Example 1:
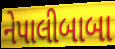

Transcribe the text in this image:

નેપાલીબાબા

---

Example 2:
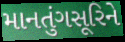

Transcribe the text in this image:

માનતુંગસૂરિને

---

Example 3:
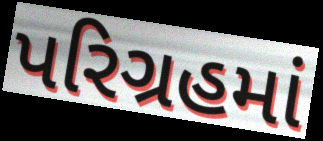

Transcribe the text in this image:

પરિગ્રહમાં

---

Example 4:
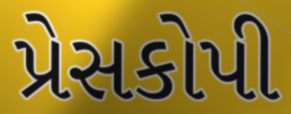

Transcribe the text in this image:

પ્રેસકોપી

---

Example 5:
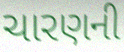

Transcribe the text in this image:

ચારણની